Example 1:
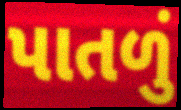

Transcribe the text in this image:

પાતળું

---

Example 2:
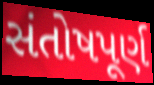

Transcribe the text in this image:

સંતોષપૂર્ણ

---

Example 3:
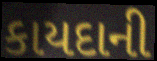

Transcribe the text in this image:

કાયદાની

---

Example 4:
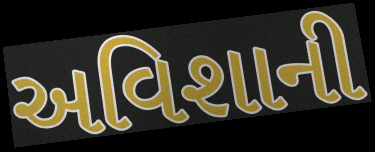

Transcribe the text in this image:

અવિશાની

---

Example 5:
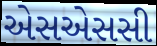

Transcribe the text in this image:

એસએસસી